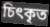
চিৎকৃত